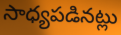
సాధ్యపడినట్లు